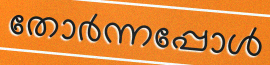
തോർന്നപ്പോൾ